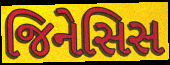
જિનેસિસ